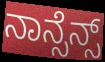
ನಾನ್ಸೆನ್ಸ್